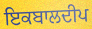
ਇਕਬਾਲਦੀਪ